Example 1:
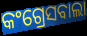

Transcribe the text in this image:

କଂଗ୍ରେସବାଲା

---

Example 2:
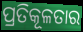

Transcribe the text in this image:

ପ୍ରତିକୂଳତାର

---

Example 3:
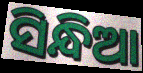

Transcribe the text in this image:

ସିନ୍ଧିଆ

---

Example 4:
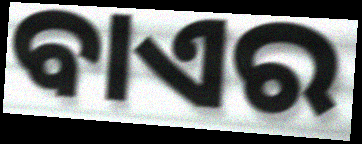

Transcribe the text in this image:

ବାଏର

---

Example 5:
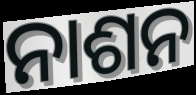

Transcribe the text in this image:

ନାଶନ